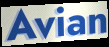
Avian